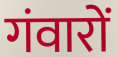
गंवारों